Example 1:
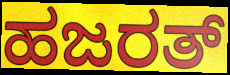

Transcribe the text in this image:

ಹಜರತ್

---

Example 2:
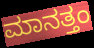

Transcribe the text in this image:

ಮಾನತ್ತಂ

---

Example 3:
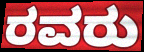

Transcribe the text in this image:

ರವರು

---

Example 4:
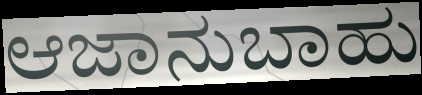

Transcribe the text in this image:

ಆಜಾನುಬಾಹು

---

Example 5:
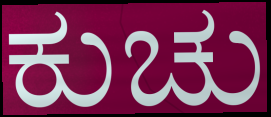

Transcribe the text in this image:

ಕುಚು